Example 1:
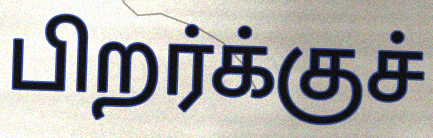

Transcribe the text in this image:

பிறர்க்குச்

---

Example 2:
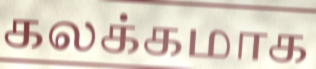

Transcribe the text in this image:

கலக்கமாக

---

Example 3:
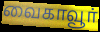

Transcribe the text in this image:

வைகாவூர்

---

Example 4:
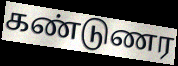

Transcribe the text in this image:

கண்டுணர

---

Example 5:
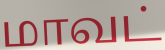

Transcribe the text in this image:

மாவட்